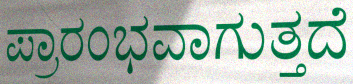
ಪ್ರಾರಂಭವಾಗುತ್ತದೆ